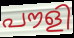
പൗളി